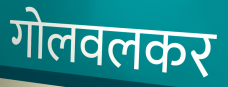
गोलवलकर